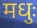
मधुः